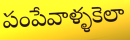
పంపేవాళ్ళకెలా